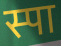
स्पा